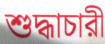
শুদ্ধাচারী